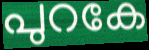
പുറകേ